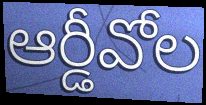
ఆర్డీవోల